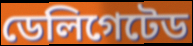
ডেলিগেটেড